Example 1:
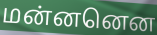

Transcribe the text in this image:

மன்னனென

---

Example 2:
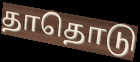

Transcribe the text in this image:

தாதொடு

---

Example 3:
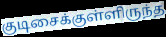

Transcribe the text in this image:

குடிசைக்குள்ளிருந்த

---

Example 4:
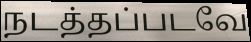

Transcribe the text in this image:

நடத்தப்படவே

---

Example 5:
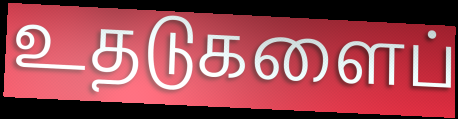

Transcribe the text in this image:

உதடுகளைப்